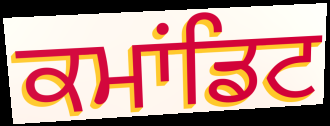
ਕਮਾਂਡਿਟ